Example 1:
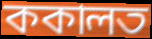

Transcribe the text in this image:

ককালত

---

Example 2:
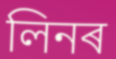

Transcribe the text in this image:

লিনৰ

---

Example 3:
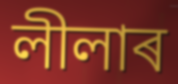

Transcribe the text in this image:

লীলাৰ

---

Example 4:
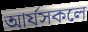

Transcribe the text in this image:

আৰ্যসকলে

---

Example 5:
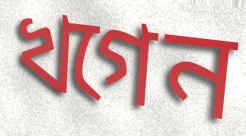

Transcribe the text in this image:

খগেন